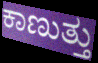
ಕಾಣುತ್ತು